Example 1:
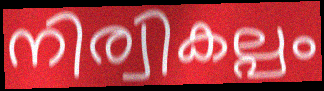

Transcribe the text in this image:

നിര്വികല്പം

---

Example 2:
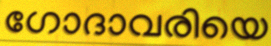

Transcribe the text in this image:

ഗോദാവരിയെ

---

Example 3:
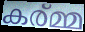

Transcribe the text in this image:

കര്മ്മ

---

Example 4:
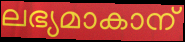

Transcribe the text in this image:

ലഭ്യമാകാന്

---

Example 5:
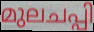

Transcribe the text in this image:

മുലചപ്പി